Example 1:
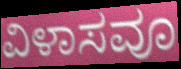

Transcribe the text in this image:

ವಿಳಾಸವೂ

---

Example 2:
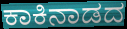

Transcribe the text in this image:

ಕಾಕಿನಾಡದ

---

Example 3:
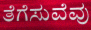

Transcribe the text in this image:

ತೆಗೆಸುವೆವು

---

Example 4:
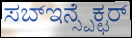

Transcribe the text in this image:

ಸಬ್ಇನ್ಸ್ಪೆಕ್ಟರ್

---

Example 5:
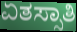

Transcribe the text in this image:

ಏತಸ್ಸಾತಿ